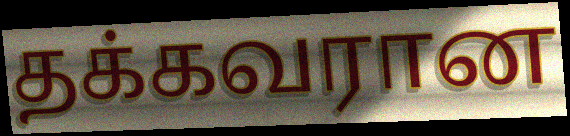
தக்கவரான